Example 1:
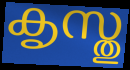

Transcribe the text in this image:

കൃസ്തു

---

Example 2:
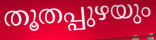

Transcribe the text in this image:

തൂതപ്പുഴയും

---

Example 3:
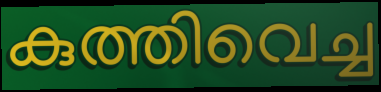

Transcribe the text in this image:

കുത്തിവെച്ച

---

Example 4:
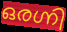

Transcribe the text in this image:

ഒരഗ്നി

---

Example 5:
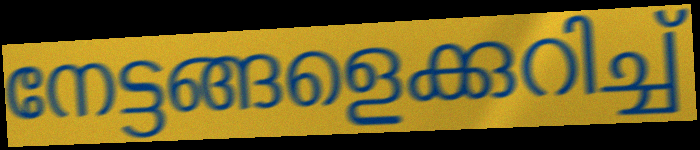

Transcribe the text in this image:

നേട്ടങ്ങളെക്കുറിച്ച്